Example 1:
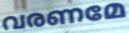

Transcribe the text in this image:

വരണമേ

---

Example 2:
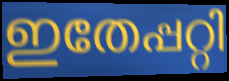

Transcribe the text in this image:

ഇതേപ്പറ്റി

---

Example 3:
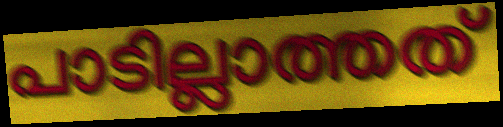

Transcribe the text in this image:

പാടില്ലാത്തത്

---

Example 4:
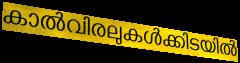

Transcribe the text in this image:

കാൽവിരലുകൾക്കിടയിൽ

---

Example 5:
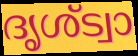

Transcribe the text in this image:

ദൃശ്ട്വാ